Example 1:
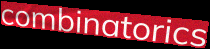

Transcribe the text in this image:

combinatorics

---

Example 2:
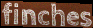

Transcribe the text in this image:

finches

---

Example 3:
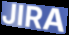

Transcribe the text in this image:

JIRA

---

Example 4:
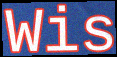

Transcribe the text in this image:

Wis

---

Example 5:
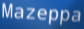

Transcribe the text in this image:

Mazeppa